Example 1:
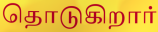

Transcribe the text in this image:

தொடுகிறார்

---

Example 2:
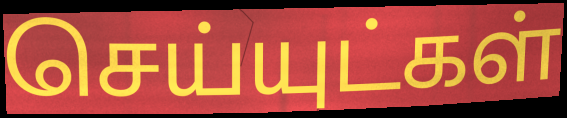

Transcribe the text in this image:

செய்யுட்கள்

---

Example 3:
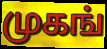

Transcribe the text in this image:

முகங்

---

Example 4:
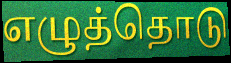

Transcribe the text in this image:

எழுத்தொடு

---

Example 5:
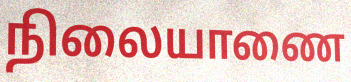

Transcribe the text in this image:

நிலையாணை